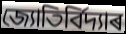
জ্যোতিৰ্বিদ্যাৰ